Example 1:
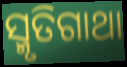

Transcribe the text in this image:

ସ୍ମୃତିଗାଥା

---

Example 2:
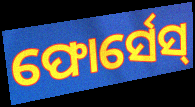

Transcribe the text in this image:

ଫୋର୍ସେସ୍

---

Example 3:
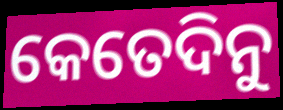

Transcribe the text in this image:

କେତେଦିନୁ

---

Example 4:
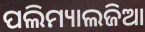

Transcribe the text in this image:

ପଲିମ୍ୟାଲଜିଆ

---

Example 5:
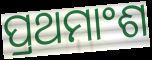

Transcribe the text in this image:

ପ୍ରଥମାଂଶ